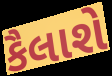
કૈલાશે